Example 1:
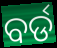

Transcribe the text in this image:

ବର୍ଡ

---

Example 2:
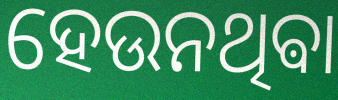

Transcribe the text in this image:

ହେଉନଥିଵା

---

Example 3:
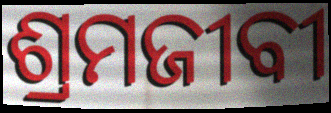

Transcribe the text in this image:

ଶ୍ରମଜୀବୀ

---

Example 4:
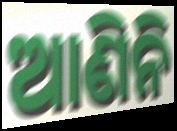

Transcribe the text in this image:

ଆଣିନି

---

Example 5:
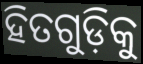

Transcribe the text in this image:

ହିତଗୁଡ଼ିକୁ